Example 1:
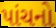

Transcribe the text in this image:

પાંચનો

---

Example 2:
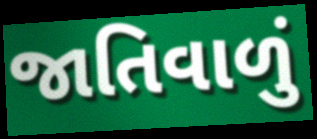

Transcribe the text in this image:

જાતિવાળું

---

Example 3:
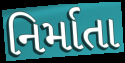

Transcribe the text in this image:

નિર્માતા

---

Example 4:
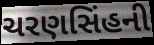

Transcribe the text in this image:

ચરણસિંહની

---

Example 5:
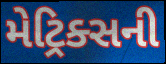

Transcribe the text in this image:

મેટ્રિક્સની